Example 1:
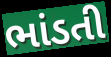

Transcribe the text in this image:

ભાંડતી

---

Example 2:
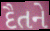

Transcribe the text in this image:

દૈતને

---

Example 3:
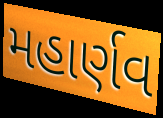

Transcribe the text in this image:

મહાર્ણવ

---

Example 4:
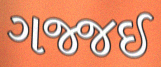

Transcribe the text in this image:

ગજ્જઈ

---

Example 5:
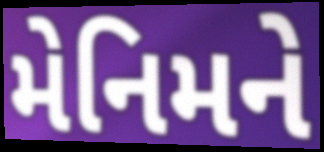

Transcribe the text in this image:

મેનિમને